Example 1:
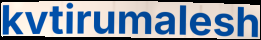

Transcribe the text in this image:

kvtirumalesh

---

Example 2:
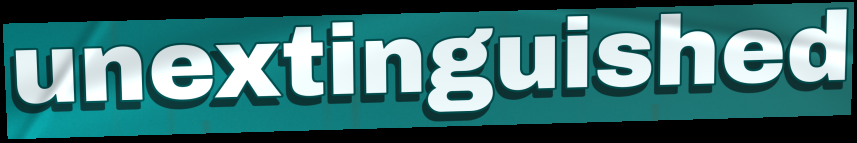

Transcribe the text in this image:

unextinguished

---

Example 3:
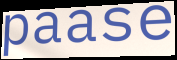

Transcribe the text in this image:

paase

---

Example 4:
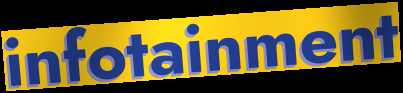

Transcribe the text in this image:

infotainment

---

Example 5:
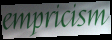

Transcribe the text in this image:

empricism